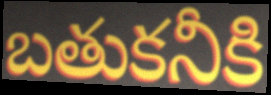
బతుకనీకి